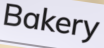
Bakery